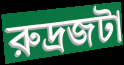
রুদ্রজটা